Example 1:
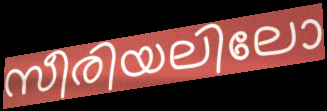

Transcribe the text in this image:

സീരിയലിലോ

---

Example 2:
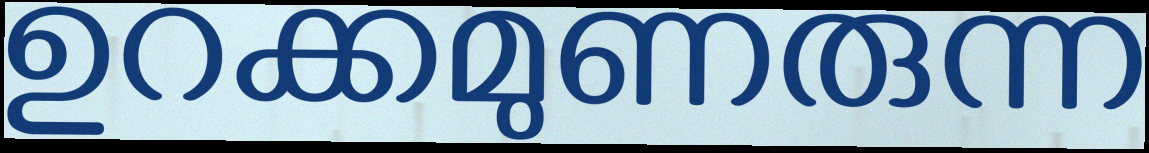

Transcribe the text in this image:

ഉറക്കമുണരുന്ന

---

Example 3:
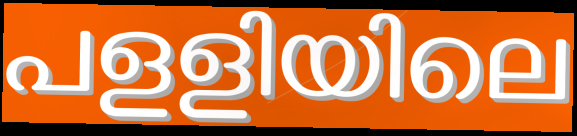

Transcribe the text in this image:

പളളിയിലെ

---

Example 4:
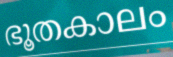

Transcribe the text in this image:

ഭൂതകാലം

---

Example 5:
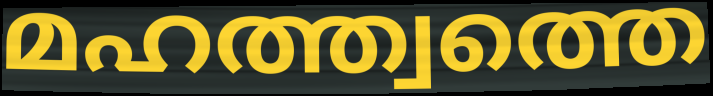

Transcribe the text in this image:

മഹത്ത്വത്തെ